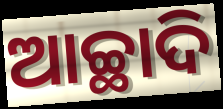
ଆଚ୍ଛାଦି